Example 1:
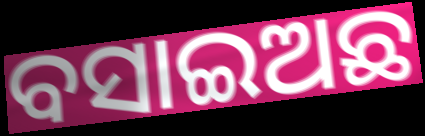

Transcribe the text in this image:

ବସାଇଅଛ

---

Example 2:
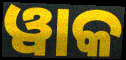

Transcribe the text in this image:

ୱାକ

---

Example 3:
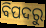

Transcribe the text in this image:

ବିପଦରୁ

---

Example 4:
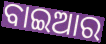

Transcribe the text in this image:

ବାଇଆର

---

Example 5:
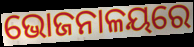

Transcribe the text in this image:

ଭୋଜନାଳୟରେ